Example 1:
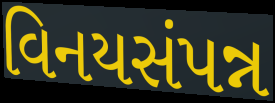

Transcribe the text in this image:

વિનયસંપન્ન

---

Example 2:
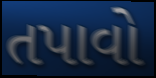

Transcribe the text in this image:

તપાવો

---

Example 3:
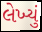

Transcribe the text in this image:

લેખ્યું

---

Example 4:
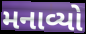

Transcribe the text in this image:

મનાવ્યો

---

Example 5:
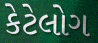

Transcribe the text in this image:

કેટેલોગ